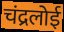
चंद्रलोई